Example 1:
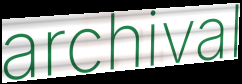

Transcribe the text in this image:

archival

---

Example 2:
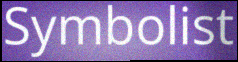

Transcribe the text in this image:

Symbolist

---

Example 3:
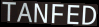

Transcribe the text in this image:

TANFED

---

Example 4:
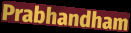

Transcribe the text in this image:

Prabhandham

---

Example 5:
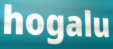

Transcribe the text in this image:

hogalu